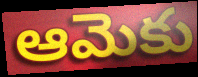
ఆమెకు